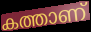
കത്താണ്